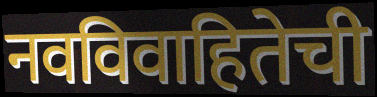
नवविवाहितेची